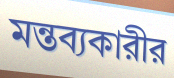
মন্তব্যকারীর